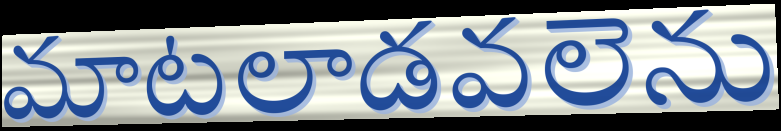
మాటలాడవలెను